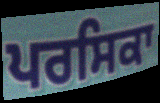
ਪਰਸਿਕਾ